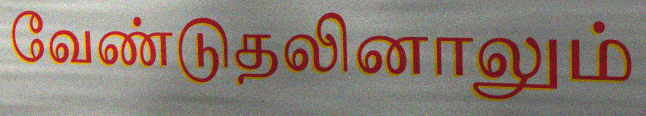
வேண்டுதலினாலும்